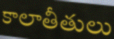
కాలాతీతులు